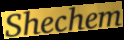
Shechem